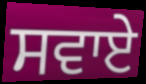
ਸਵਾਏ